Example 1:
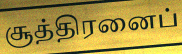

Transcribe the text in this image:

சூத்திரனைப்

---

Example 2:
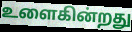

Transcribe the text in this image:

உளைகின்றது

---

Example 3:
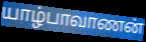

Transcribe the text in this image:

யாழ்பாவாணன்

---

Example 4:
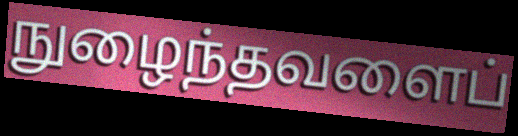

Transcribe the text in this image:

நுழைந்தவளைப்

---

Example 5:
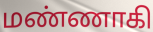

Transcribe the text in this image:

மண்ணாகி